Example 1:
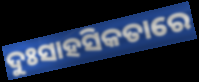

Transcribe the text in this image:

ଦୁଃସାହସିକତାରେ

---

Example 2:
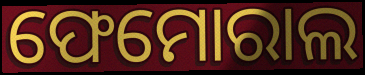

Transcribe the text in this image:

ଫେମୋରାଲ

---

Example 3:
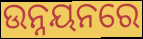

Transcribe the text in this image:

ଉନ୍ନୟନରେ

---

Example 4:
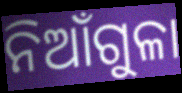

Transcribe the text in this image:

ନିଆଁଗୁଳା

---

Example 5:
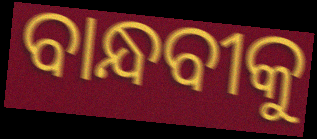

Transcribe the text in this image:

ବାନ୍ଧବୀକୁ